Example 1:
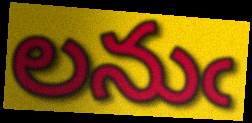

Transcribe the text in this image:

లనుఁ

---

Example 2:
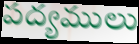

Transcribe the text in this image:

పద్యములు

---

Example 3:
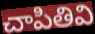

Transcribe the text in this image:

చాపితివి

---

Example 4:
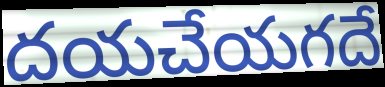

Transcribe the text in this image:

దయచేయగదే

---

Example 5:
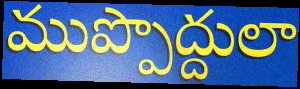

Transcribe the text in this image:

ముప్పొద్దులా